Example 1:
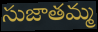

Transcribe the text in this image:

సుజాతమ్మ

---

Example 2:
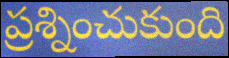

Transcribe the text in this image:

ప్రశ్నించుకుంది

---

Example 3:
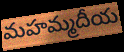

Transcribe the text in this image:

మహమ్మదీయ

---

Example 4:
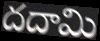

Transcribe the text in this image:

దదామి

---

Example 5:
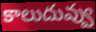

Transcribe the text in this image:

కాలుదువ్వు